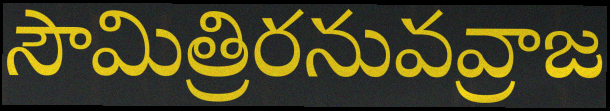
సౌమిత్రిరనువవ్రాజ